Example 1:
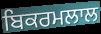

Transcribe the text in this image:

ਬਿਕਰਮਲਾਲ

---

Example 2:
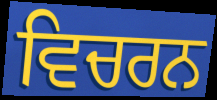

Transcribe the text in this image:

ਵਿਚਰਨ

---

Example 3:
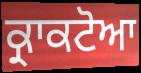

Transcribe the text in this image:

ਕ੍ਰਾਕਟੋਆ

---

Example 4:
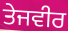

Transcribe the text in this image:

ਤੇਜਵੀਰ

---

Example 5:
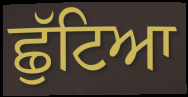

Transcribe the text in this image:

ਛੁੱਟਿਆ